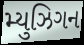
મ્યુઝિગન